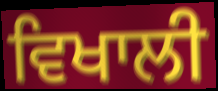
ਵਿਖਾਲੀ